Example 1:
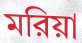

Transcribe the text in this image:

মরিয়া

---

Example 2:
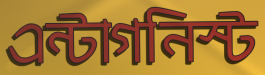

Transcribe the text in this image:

এন্টাগনিস্ট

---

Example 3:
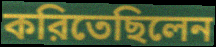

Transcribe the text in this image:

করিতেছিলেন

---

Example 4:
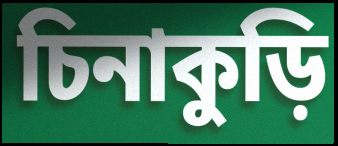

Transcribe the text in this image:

চিনাকুড়ি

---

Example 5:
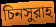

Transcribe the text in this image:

চিনসুরাহ